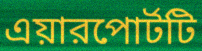
এয়ারপোর্টটি